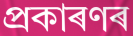
প্ৰকাৰণৰ